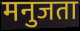
मनुजता